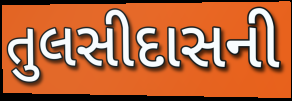
તુલસીદાસની